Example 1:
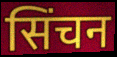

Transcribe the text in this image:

सिंचन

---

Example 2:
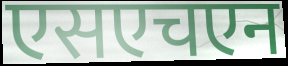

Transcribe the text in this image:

एसएचएन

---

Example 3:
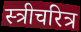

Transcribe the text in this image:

स्त्रीचरित्र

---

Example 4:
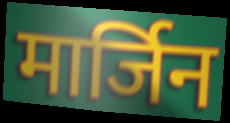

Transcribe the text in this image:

मार्जिन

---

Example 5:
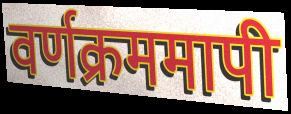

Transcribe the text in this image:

वर्णक्रममापी